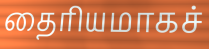
தைரியமாகச்